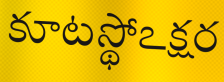
కూటస్థోఽక్షర